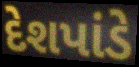
દેશપાંડે